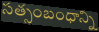
సత్సంబంధాన్ని